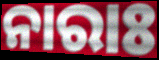
ନାରାଃ